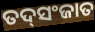
ତଦ୍‌ସଂଜାତ